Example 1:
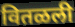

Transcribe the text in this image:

वितळली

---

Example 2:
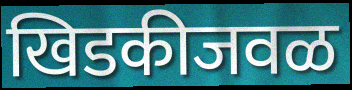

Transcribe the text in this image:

खिडकीजवळ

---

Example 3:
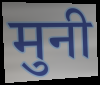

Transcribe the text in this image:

मुनी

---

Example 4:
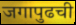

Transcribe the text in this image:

जगापुढची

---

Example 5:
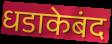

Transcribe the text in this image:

धडाकेबंद